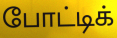
போட்டிக்